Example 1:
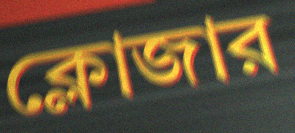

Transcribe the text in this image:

ক্লোজার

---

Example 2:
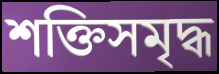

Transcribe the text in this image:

শক্তিসমৃদ্ধ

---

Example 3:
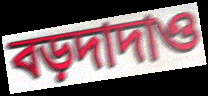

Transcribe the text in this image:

বড়দাদাও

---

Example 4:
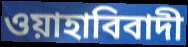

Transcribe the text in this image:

ওয়াহাবিবাদী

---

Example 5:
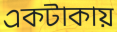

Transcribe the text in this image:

একটাকায়